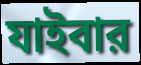
যাইবার